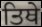
ਤਿਥੇ